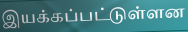
இயக்கப்பட்டுள்ளன